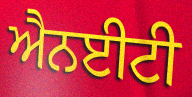
ਐਨਈਟੀ